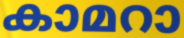
കാമറാ